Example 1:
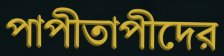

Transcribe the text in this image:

পাপীতাপীদের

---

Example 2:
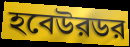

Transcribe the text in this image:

হবেউরডর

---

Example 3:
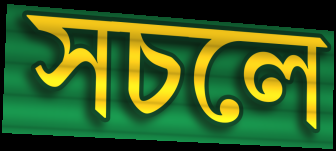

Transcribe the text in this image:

সচলে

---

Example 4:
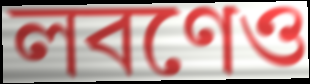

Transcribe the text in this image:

লবণেও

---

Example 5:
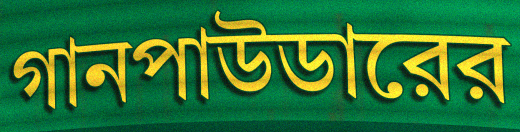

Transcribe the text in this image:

গানপাউডারের